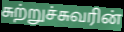
சுற்றுச்சுவரின்